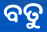
ବତୁ